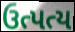
ઉત્પત્ય